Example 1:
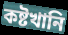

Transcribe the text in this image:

কষ্টখানি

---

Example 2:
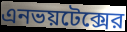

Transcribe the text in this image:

এনভয়টেক্সের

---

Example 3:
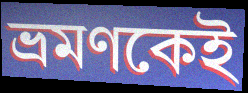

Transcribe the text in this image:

ভ্রমণকেই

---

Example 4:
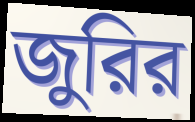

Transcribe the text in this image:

জুরির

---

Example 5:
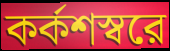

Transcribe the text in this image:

কর্কশস্বরে